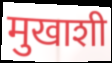
मुखाशी